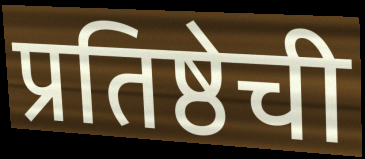
प्रतिष्ठेची